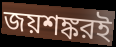
জয়শঙ্করই